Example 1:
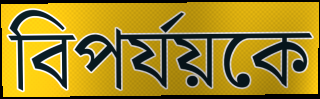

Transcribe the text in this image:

বিপর্যয়কে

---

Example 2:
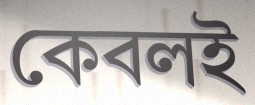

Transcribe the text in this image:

কেবলই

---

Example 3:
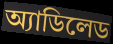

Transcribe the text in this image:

অ্যাডিলেড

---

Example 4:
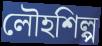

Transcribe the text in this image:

লৌহশিল্প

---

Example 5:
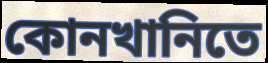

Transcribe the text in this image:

কোনখানিতে